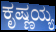
ಕೃಷ್ಣಯ್ಯ